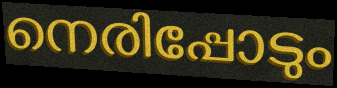
നെരിപ്പോടും